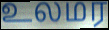
உலமர